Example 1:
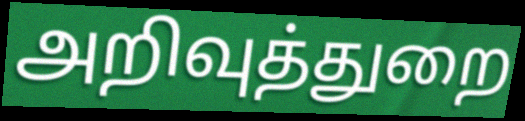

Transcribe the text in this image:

அறிவுத்துறை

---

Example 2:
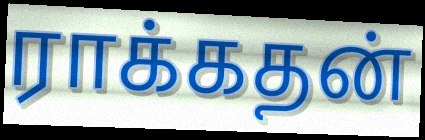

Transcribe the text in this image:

ராக்கதன்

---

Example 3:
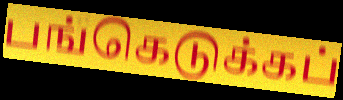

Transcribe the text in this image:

பங்கெடுக்கப்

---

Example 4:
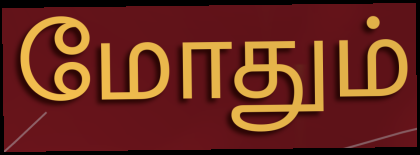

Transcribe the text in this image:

மோதும்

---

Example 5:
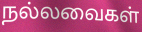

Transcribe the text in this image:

நல்லவைகள்